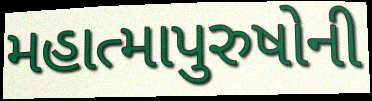
મહાત્માપુરુષોની